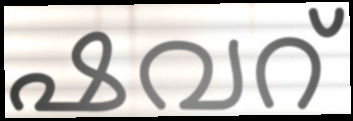
ഷവറ്